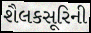
શૈલકસૂરિની